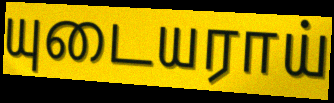
யுடையராய்